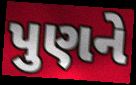
પુણને